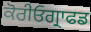
ਕੋਰੀਓਗ੍ਰਾਫਡ